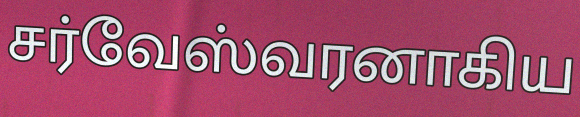
சர்வேஸ்வரனாகிய